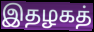
இதழகத்